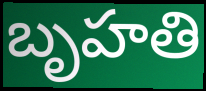
బృహతి